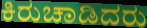
ಕಿರುಚಾಡಿದರು